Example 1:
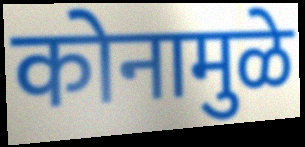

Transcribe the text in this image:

कोनामुळे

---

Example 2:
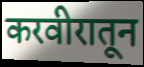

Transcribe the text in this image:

करवीरातून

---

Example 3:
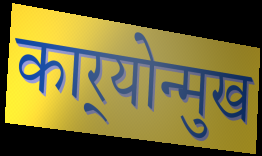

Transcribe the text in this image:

कार्योन्मुख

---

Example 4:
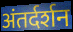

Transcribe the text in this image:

अंतर्दर्शन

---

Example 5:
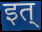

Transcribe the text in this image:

इत्